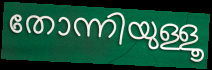
തോന്നിയുള്ളൂ